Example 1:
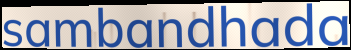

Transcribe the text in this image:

sambandhada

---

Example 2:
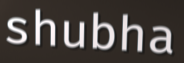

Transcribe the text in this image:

shubha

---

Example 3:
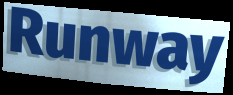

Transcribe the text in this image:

Runway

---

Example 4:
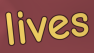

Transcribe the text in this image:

lives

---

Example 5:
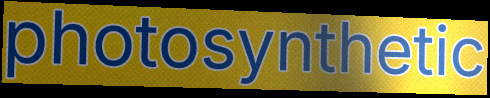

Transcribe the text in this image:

photosynthetic